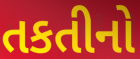
તકતીનો